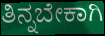
ತಿನ್ನಬೇಕಾಗಿ